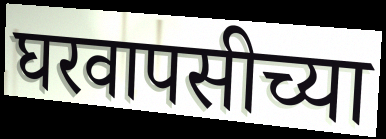
घरवापसीच्या